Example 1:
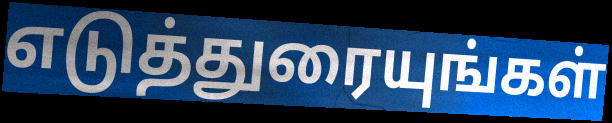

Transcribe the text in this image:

எடுத்துரையுங்கள்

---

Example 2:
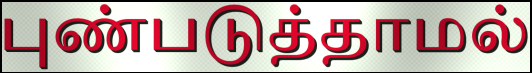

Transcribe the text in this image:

புண்படுத்தாமல்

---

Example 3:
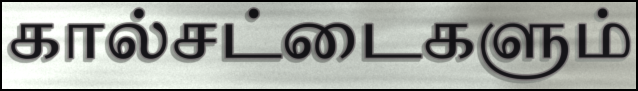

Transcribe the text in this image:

கால்சட்டைகளும்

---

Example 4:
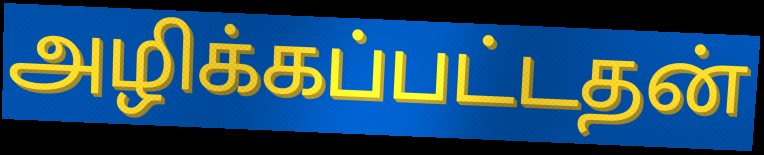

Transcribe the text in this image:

அழிக்கப்பட்டதன்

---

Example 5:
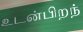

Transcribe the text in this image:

உடன்பிறந்